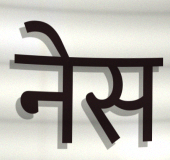
नेस